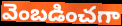
వెంబడించగా